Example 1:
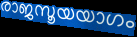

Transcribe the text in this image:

രാജസൂയയാഗം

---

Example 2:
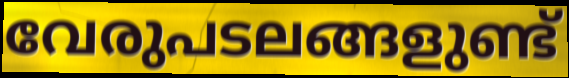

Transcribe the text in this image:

വേരുപടലങ്ങളുണ്ട്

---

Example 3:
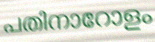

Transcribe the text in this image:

പതിനാറോളം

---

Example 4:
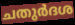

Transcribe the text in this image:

ചതുർദശ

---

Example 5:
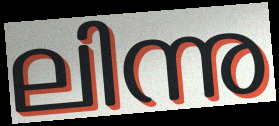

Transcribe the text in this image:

ലിന്നു